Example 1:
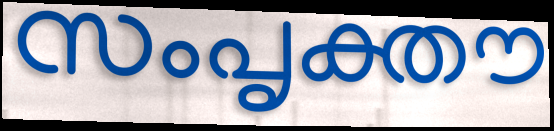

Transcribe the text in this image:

സംപൃക്തൗ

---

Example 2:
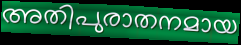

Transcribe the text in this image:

അതിപുരാതനമായ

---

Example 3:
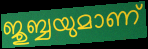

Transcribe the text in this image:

ജുബ്ബയുമാണ്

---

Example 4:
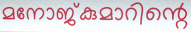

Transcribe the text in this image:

മനോജ്കുമാറിന്റെ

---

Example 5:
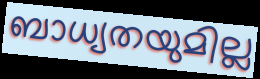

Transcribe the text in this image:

ബാധ്യതയുമില്ല